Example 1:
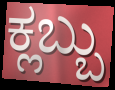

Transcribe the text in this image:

ಕ್ಲಬ್ಬು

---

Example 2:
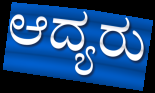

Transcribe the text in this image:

ಆದ್ಯರು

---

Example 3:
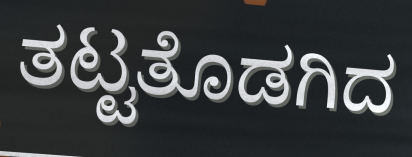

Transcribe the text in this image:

ತಟ್ಟತೊಡಗಿದ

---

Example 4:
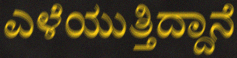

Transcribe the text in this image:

ಎಳೆಯುತ್ತಿದ್ದಾನೆ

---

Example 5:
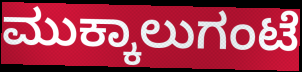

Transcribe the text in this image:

ಮುಕ್ಕಾಲುಗಂಟೆ